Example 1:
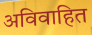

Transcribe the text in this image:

अविवाहित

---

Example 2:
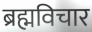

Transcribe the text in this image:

ब्रह्मविचार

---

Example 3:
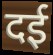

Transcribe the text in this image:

दई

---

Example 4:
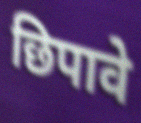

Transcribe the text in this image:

छिपावे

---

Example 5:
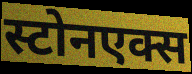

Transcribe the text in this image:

स्टोनएक्स